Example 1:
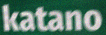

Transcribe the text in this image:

katano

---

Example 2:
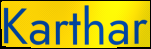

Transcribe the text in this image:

Karthar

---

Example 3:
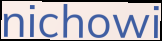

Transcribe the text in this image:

nichowi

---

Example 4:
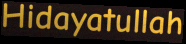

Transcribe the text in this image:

Hidayatullah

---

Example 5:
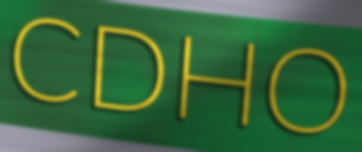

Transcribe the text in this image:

CDHO